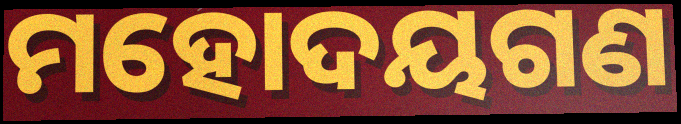
ମହୋଦୟଗଣ